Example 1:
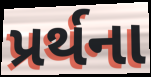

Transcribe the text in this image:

પ્રર્થના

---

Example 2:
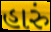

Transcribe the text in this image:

હારું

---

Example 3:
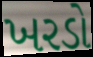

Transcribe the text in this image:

ખરડો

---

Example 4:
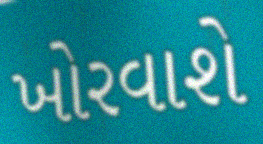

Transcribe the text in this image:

ખોરવાશે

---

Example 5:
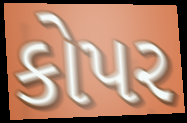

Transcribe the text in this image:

કોપર